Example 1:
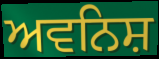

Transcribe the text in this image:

ਅਵਨਿਸ਼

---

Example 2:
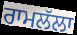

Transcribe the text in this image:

ਰਾਮਲੱਲਾ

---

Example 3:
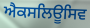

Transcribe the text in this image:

ਐਕਸਲਿਊਸਿਵ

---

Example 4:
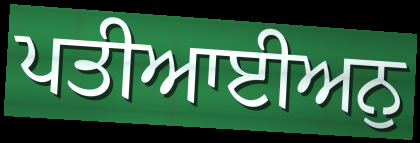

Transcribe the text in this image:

ਪਤੀਆਈਅਨੁ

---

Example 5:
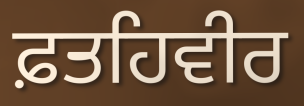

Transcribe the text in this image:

ਫ਼ਤਹਿਵੀਰ